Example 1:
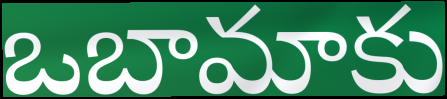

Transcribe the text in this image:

ఒబామాకు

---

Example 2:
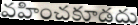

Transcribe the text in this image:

వహించకూడదు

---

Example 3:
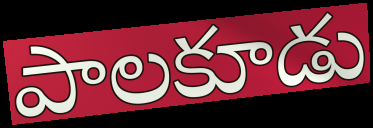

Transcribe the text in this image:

పాలకూడు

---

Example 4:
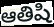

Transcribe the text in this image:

ఆతిషి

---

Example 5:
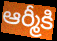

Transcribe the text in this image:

ఆర్మీకి